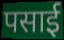
पसाई